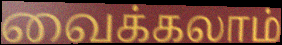
வைக்கலாம்